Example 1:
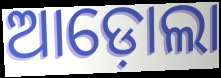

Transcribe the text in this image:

ଆଡ଼ୋଲା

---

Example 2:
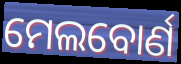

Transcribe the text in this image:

ମେଲବୋର୍ଣ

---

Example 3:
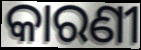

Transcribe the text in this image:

କାରଣୀ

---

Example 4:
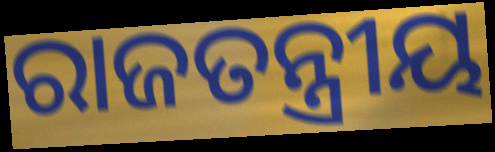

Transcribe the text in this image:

ରାଜତନ୍ତ୍ରୀୟ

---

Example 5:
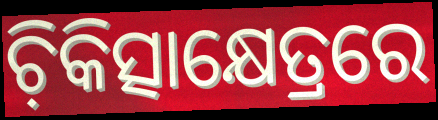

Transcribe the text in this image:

ଚ଼ିକିତ୍ସାକ୍ଷେତ୍ରରେ